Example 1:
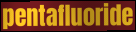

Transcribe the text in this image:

pentafluoride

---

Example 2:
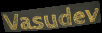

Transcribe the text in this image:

Vasudev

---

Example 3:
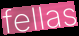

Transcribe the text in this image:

fellas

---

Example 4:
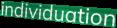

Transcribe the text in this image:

individuation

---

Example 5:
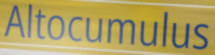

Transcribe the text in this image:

Altocumulus